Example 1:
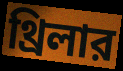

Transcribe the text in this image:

থ্রিলার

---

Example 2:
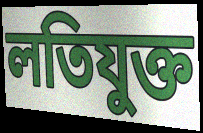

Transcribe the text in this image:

লতিযুক্ত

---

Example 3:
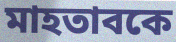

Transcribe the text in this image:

মাহতাবকে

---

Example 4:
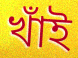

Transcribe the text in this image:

খাঁই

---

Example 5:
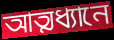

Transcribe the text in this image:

আত্মধ্যানে